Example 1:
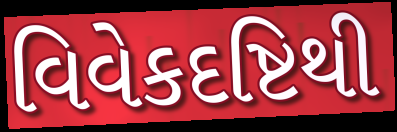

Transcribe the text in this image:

વિવેકદષ્ટિથી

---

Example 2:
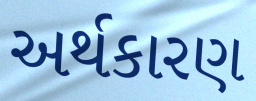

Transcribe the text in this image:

અર્થકારણ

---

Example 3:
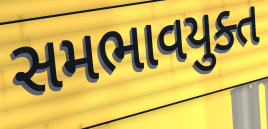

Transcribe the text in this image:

સમભાવયુક્ત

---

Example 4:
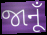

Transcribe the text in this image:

જાનૂઁ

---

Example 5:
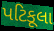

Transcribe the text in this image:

પટિકૂલા